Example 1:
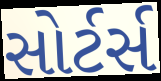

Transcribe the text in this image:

સોર્ટર્સ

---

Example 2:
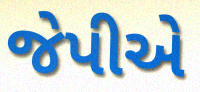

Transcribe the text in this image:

જેપીએ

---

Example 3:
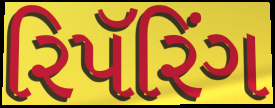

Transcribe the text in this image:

રિપૅરિંગ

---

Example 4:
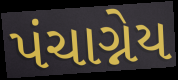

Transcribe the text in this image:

પંચાગ્નેય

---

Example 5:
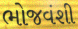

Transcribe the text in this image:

ભોજવંશી